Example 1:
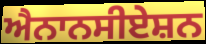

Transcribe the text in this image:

ਐਨਾਨਸੀਏਸ਼ਨ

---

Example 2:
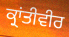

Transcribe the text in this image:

ਕ੍ਰਾਂਤੀਵੀਰ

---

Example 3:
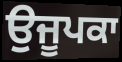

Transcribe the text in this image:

ਉਜੂਪਕਾ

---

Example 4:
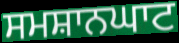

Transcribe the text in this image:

ਸਮਸ਼ਾਨਘਾਟ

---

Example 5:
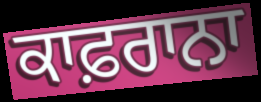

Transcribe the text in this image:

ਕਾਫ਼ਰਾਨਾ